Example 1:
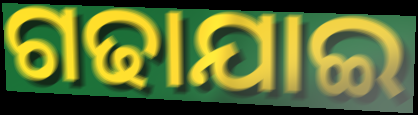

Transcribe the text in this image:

ଗଢାଯାଇ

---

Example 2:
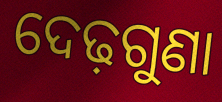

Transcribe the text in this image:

ଦେଢ଼ଗୁଣା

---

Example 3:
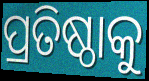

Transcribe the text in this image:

ପ୍ରତିଷ୍ଠାକୁ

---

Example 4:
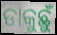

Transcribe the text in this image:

ଡାକୁଛୁଁ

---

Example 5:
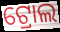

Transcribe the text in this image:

ଟ୍ରୋଲ